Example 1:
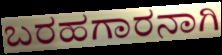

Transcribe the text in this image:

ಬರಹಗಾರನಾಗಿ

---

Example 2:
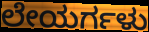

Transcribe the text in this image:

ಲೇಯರ್ಗಳು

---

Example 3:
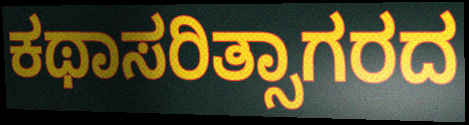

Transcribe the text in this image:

ಕಥಾಸರಿತ್ಸಾಗರದ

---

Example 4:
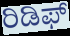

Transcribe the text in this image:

ರಿಡಿಫ್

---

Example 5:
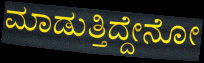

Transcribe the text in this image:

ಮಾಡುತ್ತಿದ್ದೇನೋ